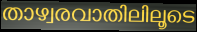
താഴ്വരവാതിലിലൂടെ